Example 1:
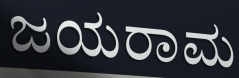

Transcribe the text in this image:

ಜಯರಾಮ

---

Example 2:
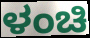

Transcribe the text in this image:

ಳಂಚಿ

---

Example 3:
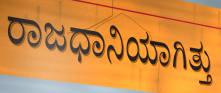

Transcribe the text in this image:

ರಾಜಧಾನಿಯಾಗಿತ್ತು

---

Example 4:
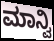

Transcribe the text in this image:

ಮಾನ್ವಿ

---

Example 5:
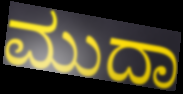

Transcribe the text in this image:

ಮುದಾ